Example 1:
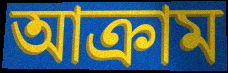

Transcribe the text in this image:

আক্ৰাম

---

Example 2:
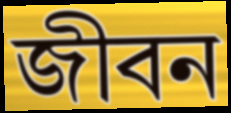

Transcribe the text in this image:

জীবন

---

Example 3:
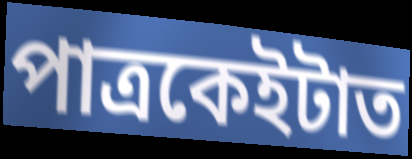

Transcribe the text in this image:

পাত্ৰকেইটাত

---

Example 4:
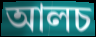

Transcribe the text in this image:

আলচ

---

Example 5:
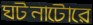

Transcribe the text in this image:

ঘটনাটোৱে